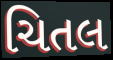
ચિતલ